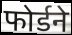
फोर्डने